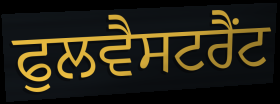
ਫੁਲਵੈਸਟਰੈਂਟ